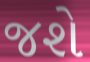
જશે